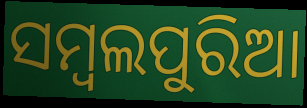
ସମ୍ବଲପୁରିଆ